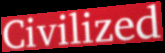
Civilized